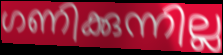
ഗണിക്കുന്നില്ല